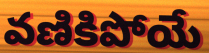
వణికిపోయే